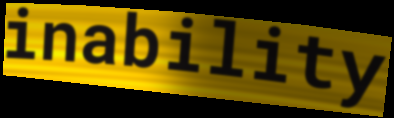
inability